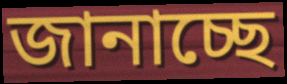
জানাচ্ছে